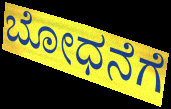
ಬೋಧನೆಗೆ